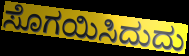
ಸೊಗಯಿಸಿದುದು